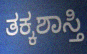
ತಕ್ಕಶಾಸ್ತಿ